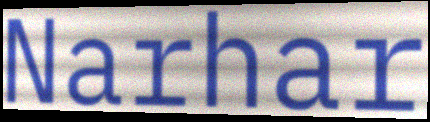
Narhar